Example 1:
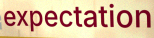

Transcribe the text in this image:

expectation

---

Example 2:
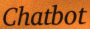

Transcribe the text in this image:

Chatbot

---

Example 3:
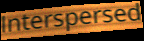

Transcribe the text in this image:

Interspersed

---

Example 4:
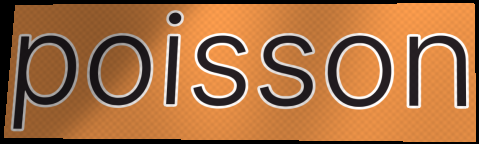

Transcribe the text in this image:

poisson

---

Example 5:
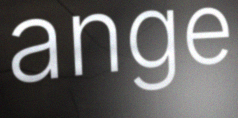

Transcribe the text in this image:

ange